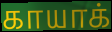
காயாக்